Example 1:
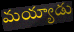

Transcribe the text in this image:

మయ్యాడు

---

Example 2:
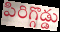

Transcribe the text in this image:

పిరిగ్గొడ్డు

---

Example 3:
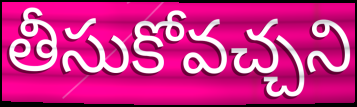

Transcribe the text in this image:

తీసుకోవచ్చని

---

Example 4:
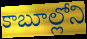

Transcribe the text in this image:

కాబూల్లోని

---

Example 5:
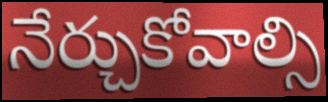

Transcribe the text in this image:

నేర్చుకోవాల్సి